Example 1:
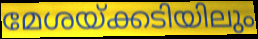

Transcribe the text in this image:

മേശയ്ക്കടിയിലും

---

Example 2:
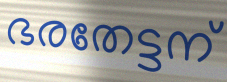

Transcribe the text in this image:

ഭരതേട്ടന്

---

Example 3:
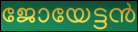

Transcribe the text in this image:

ജോയേട്ടൻ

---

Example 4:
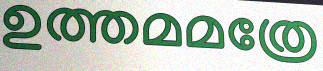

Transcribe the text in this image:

ഉത്തമമത്രേ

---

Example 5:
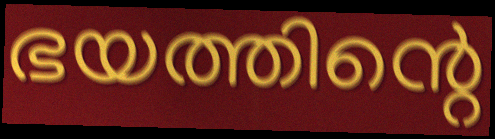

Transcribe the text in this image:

ഭയത്തിന്റെ